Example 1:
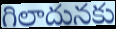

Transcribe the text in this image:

గిలాదునకు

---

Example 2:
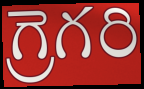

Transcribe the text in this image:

గ్రెగరి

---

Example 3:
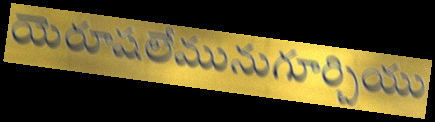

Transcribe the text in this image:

యెరూషలేమునుగూర్చియు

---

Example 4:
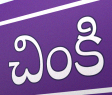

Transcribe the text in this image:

చింకి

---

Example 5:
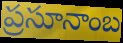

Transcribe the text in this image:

ప్రసూనాంబ